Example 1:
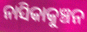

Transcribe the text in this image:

ନାସିକାକୁଞ୍ଚନ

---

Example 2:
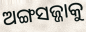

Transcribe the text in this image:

ଅଙ୍ଗସଜ୍ଜାକୁ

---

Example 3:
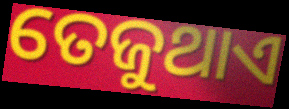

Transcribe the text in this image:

ତେଜୁଥାଏ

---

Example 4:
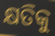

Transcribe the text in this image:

କ୍ଷତିକୁ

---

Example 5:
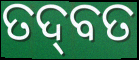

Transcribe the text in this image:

ତଦ୍‍ବତ